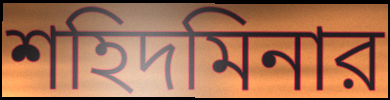
শহিদমিনার